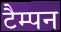
टैम्पन